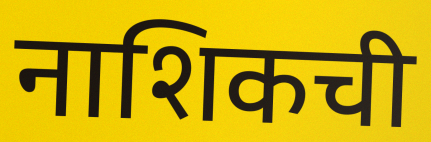
नाशिकची